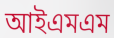
আইএমএম